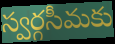
స్వర్గసీమకు